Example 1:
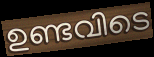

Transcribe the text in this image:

ഉണ്ടവിടെ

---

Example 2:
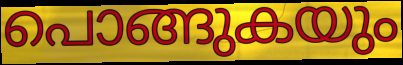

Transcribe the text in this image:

പൊങ്ങുകയും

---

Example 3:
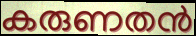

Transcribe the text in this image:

കരുണതൻ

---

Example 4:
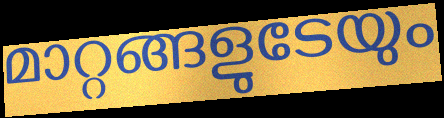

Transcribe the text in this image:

മാറ്റങ്ങളുടേയും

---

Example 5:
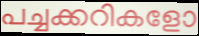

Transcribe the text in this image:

പച്ചക്കറികളോ